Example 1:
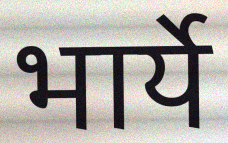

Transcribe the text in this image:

भार्ये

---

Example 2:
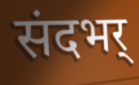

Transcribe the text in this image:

संदभर्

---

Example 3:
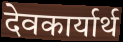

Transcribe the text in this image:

देवकार्यार्थ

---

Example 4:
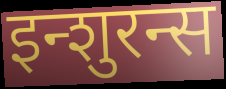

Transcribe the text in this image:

इन्शुरन्स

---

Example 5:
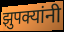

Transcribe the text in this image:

झुपक्यांनी